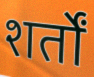
शर्तों